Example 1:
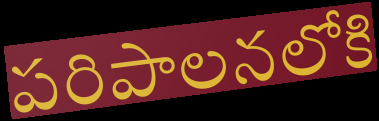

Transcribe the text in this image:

పరిపాలనలోకి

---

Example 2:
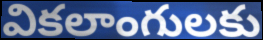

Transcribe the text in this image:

వికలాంగులకు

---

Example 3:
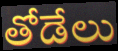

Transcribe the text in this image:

తోడేలు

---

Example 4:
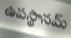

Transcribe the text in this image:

ఉపస్థానమ్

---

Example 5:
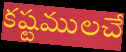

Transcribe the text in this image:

కష్టములచే